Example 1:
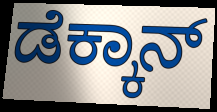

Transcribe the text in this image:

ಡೆಕ್ಕಾನ್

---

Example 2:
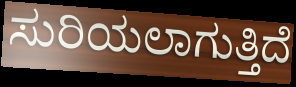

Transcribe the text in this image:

ಸುರಿಯಲಾಗುತ್ತಿದೆ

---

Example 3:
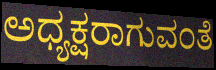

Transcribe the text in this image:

ಅಧ್ಯಕ್ಷರಾಗುವಂತೆ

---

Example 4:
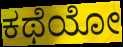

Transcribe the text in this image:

ಕಥೆಯೋ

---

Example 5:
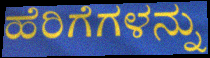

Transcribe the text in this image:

ಹೆರಿಗೆಗಳನ್ನು